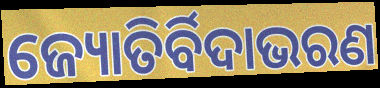
ଜ୍ୟୋତିର୍ବିଦାଭରଣ